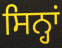
ਸਿਨ੍ਹਾਂ